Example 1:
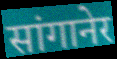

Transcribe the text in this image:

सांगानेर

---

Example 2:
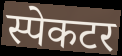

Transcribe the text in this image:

स्पेकटर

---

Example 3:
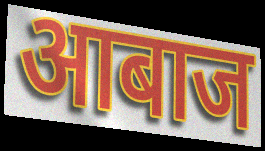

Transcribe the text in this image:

आबाज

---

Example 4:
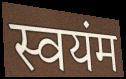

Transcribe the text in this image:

स्वयंम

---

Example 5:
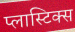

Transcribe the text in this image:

प्लास्टिक्स